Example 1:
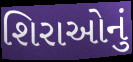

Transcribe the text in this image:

શિરાઓનું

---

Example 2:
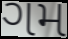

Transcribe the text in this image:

ગમ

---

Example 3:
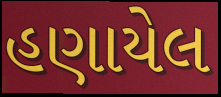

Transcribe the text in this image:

હણાયેલ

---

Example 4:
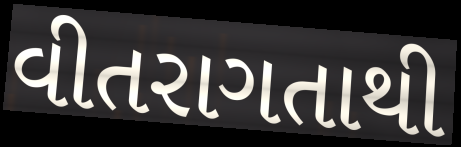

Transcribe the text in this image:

વીતરાગતાથી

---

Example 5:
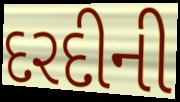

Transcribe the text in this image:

દરદીની